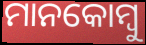
ମାନକୋମ୍ବୁ